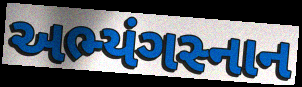
અભ્યંગસ્નાન